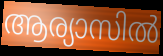
ആര്യാസിൽ